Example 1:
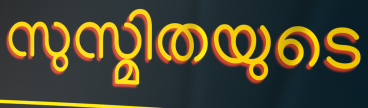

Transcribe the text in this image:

സുസ്മിതയുടെ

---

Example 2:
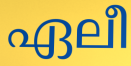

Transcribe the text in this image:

ഏലീ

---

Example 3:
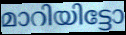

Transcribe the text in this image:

മാറിയിട്ടോ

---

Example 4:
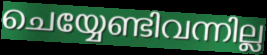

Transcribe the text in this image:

ചെയ്യേണ്ടിവന്നില്ല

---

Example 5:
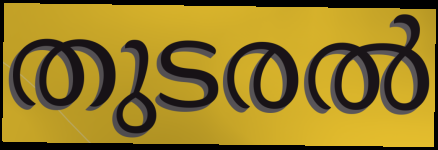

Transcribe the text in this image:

തുടരൽ